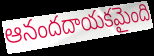
ఆనందదాయకమైంది